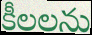
కీలలను